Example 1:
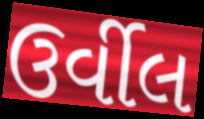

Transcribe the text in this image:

ઉર્વીલ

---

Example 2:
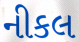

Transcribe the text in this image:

નીકલ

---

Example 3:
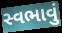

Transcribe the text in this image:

સ્વભાવું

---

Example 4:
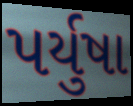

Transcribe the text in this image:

પર્યુષા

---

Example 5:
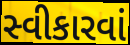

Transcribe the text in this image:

સ્વીકારવાં